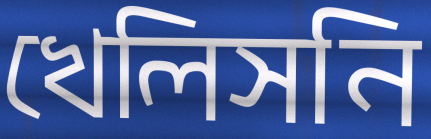
খেলিসনি